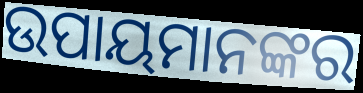
ଉପାୟମାନଙ୍କର